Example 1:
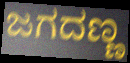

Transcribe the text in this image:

ಜಗದಣ್ಣ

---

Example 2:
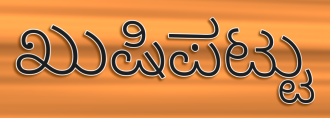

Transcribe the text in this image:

ಖುಷಿಪಟ್ಟು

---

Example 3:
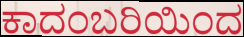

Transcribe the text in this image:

ಕಾದಂಬರಿಯಿಂದ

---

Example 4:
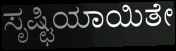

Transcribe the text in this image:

ಸೃಷ್ಟಿಯಾಯಿತೇ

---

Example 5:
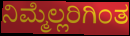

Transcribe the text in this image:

ನಿಮ್ಮೆಲ್ಲರಿಗಿಂತ